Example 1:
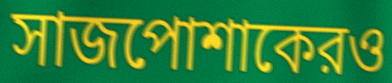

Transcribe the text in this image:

সাজপোশাকেরও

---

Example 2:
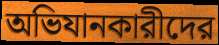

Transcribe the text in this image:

অভিযানকারীদের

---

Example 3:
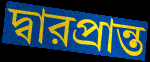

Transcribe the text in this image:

দ্বারপ্রান্ত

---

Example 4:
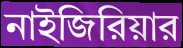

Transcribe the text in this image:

নাইজিরিয়ার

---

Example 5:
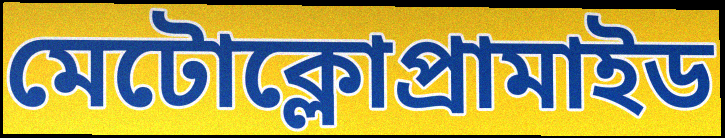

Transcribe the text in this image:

মেটোক্লোপ্রামাইড